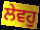
ਲੇਵਹੁ